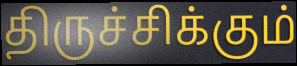
திருச்சிக்கும்